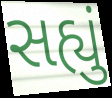
સહ્યું